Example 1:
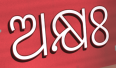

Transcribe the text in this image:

ଅକ୍ଷଃ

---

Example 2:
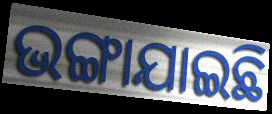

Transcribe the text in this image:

ଭଙ୍ଗାଯାଇଛି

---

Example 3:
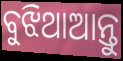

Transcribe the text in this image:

ବୁଝିଥାଆନ୍ତୁ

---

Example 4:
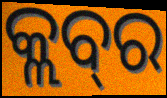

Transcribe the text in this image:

କ୍ଲବ୍‌ର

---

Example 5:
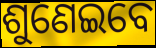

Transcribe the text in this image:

ଶୁଣେଇବେ